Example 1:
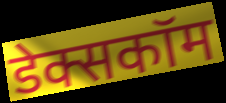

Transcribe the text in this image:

डेक्सकॉम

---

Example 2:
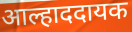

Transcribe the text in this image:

आल्हाददायक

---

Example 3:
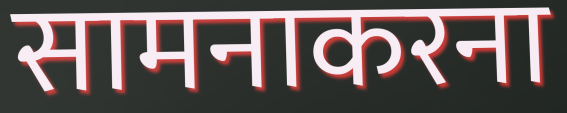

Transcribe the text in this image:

सामनाकरना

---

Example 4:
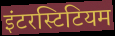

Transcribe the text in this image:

इंटरस्टिटियम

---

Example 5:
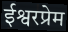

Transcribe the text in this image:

ईश्वरप्रेम